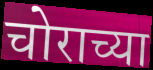
चोराच्या